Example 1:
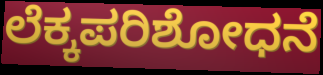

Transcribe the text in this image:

ಲೆಕ್ಕಪರಿಶೋಧನೆ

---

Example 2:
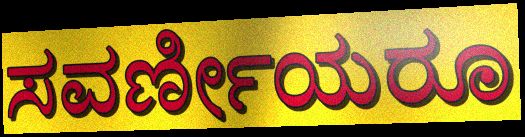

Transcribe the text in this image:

ಸವರ್ಣೀಯರೂ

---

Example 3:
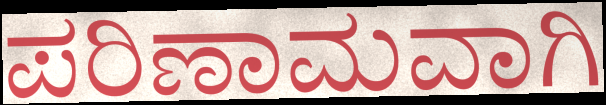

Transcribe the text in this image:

ಪರಿಣಾಮವಾಗಿ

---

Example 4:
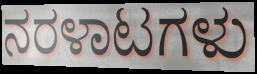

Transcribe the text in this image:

ನರಳಾಟಗಳು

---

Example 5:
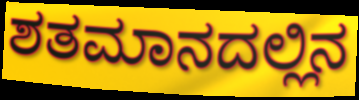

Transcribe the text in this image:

ಶತಮಾನದಲ್ಲಿನ